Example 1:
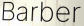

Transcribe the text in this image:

Barber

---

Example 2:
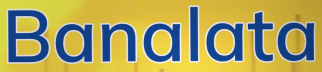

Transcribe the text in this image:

Banalata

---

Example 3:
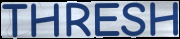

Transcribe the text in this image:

THRESH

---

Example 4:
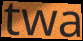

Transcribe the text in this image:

twa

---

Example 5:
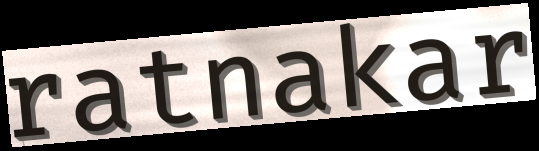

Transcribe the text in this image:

ratnakar